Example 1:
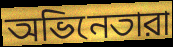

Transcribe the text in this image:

অভিনেতারা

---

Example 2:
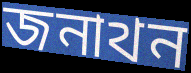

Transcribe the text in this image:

জনাথন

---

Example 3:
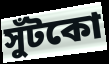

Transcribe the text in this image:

সুঁটকো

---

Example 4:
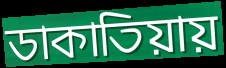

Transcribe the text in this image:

ডাকাতিয়ায়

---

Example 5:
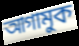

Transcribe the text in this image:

আগামুক